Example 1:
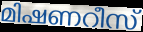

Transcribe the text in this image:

മിഷണറീസ്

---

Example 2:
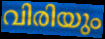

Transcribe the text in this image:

വിരിയും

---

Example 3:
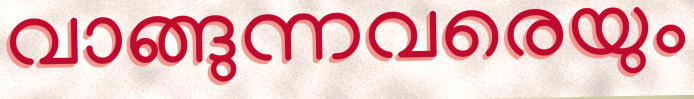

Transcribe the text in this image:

വാങ്ങുന്നവരെയും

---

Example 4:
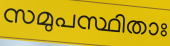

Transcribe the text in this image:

സമുപസ്ഥിതാഃ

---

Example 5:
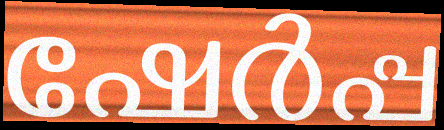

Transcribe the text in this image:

ഷേർപ്പ